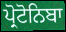
ਪ੍ਰੋਟੋਨਿਬਾ